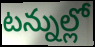
టన్నుల్లో